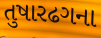
તુષારઢગના